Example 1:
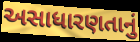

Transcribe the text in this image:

અસાધારણતાનું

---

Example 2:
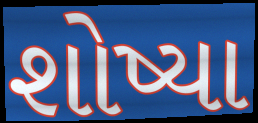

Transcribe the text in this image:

શોષ્યા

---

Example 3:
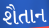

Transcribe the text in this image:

શૈતાન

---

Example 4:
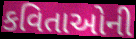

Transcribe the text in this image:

કવિતાઓની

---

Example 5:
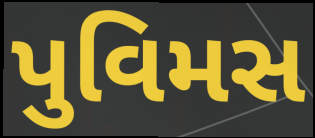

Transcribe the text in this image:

પુવિમસ